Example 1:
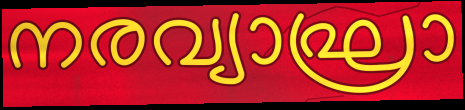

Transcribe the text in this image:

നരവ്യാഘ്രാ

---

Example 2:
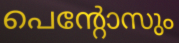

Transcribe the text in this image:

പെന്റോസും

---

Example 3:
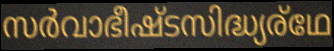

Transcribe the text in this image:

സർവാഭീഷ്ടസിദ്ധ്യര്ഥേ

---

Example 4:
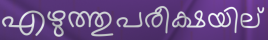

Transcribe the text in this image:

എഴുത്തുപരീക്ഷയില്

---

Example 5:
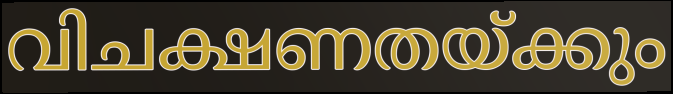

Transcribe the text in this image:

വിചക്ഷണതയ്ക്കും